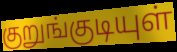
குறுங்குடியுள்